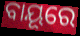
ବାୟୂରେ